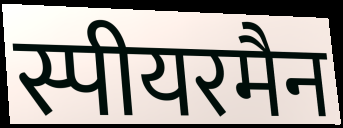
स्पीयरमैन